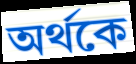
অৰ্থকে